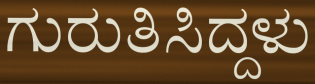
ಗುರುತಿಸಿದ್ದಳು